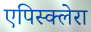
एपिस्क्लेरा